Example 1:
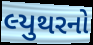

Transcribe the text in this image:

લ્યુથરનો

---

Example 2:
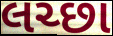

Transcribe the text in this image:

લચ્છા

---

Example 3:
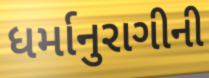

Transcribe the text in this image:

ધર્માનુરાગીની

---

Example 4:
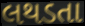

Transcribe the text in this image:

લથડતા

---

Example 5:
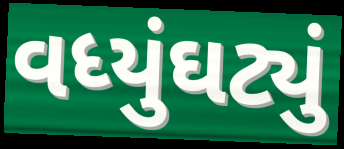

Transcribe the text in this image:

વધ્યુંઘટ્યું